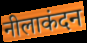
नीलाकंदन